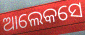
ଆଲେକସେ